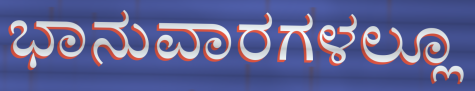
ಭಾನುವಾರಗಳಲ್ಲೂ